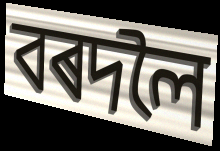
বৰদলৈ